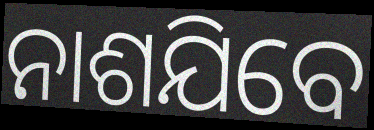
ନାଶଯିବେ